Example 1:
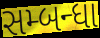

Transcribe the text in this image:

સમ્બન્ધા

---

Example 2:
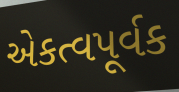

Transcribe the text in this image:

એકત્વપૂર્વક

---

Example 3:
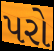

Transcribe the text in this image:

પરો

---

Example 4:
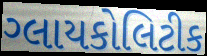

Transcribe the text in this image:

ગ્લાયકોલિટીક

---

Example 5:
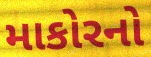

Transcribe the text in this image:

માકોરનો